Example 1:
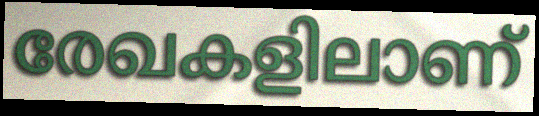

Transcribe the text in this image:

രേഖകളിലാണ്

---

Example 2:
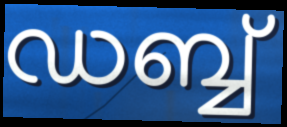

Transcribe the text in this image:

ഡബ്ബ്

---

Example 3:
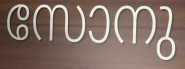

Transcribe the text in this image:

സോനു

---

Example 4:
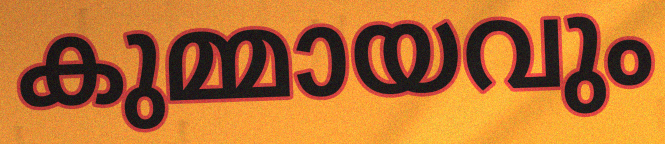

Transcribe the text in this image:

കുമ്മായവും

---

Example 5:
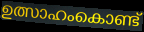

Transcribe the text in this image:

ഉത്സാഹംകൊണ്ട്